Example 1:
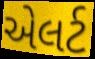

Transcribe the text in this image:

એલર્ટ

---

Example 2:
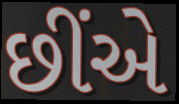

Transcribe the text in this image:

છીંએ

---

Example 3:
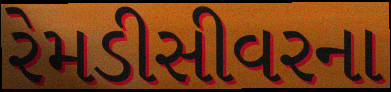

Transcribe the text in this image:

રેમડીસીવરના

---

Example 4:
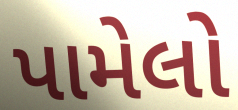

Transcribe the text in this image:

પામેલો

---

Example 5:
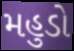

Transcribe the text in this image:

મહુડો